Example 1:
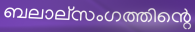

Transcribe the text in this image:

ബലാല്സംഗത്തിന്റെ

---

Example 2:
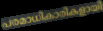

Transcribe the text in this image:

പരമാധികാരികളായി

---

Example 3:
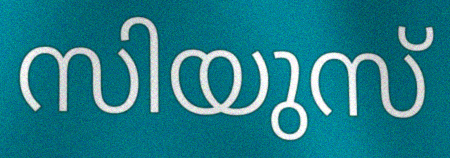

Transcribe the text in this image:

സിയുസ്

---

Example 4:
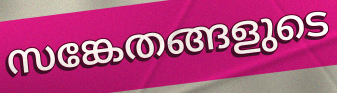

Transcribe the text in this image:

സങ്കേതങ്ങളുടെ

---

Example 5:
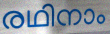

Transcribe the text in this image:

രഥിനാം